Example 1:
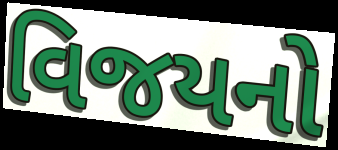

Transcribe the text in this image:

વિજયનો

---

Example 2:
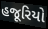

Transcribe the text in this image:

હજૂરિયો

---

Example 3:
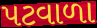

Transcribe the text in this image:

પટવાળા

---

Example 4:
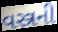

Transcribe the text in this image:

વસ્ત્રની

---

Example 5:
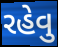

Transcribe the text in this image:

રહેવુ